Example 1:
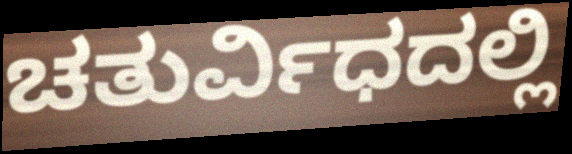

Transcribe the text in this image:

ಚತುರ್ವಿಧದಲ್ಲಿ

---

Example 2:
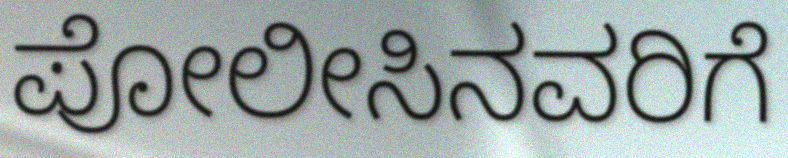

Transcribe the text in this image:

ಪೋಲೀಸಿನವರಿಗೆ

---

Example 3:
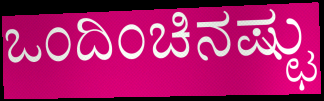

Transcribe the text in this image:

ಒಂದಿಂಚಿನಷ್ಟು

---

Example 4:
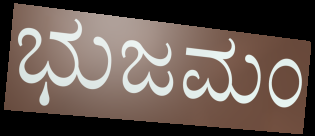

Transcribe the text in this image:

ಭುಜಮಂ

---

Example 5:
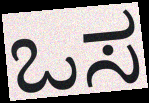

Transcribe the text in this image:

ಒಸ